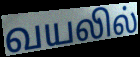
வயலில்